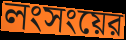
লংসংয়ের